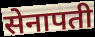
सेनापती